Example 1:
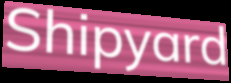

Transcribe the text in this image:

Shipyard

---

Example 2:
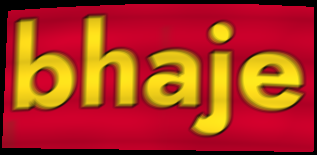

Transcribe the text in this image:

bhaje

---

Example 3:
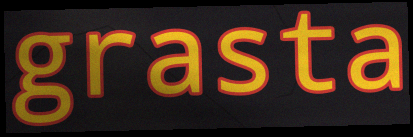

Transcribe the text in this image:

grasta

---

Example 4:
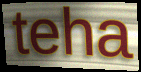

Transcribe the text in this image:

teha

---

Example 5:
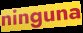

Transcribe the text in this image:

ninguna